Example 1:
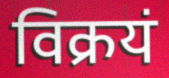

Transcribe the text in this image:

विक्रयं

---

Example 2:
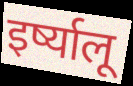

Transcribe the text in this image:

इर्ष्यालू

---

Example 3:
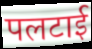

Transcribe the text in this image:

पलटाई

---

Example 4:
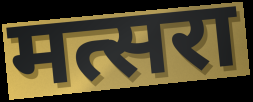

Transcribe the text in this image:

मत्सरा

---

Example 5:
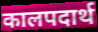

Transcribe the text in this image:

कालपदार्थ